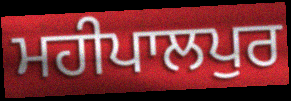
ਮਹੀਪਾਲਪੁਰ